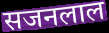
सजनलाल